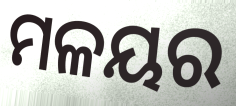
ମଳୟର